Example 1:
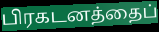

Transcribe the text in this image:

பிரகடனத்தைப்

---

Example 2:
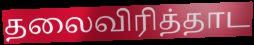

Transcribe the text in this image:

தலைவிரித்தாட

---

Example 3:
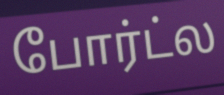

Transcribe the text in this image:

போர்ட்ல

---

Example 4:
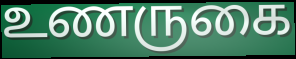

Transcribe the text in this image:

உணருகை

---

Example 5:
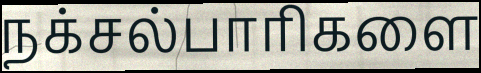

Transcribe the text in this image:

நக்சல்பாரிகளை